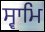
ਸ੍ਵਾਮਿ